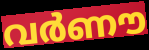
വർണൗ